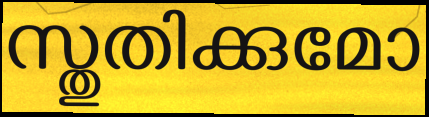
സ്തുതിക്കുമോ